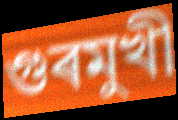
গুৰমুখী